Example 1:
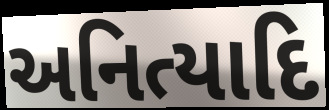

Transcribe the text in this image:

અનિત્યાદિ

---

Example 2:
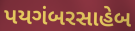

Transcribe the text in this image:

પયગંબરસાહેબ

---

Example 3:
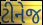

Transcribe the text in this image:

ટીનેજ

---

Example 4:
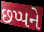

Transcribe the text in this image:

છપ્પને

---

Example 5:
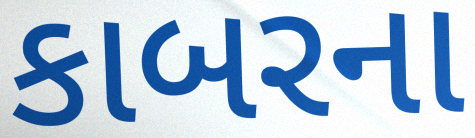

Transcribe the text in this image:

કાબરના